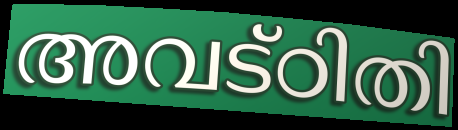
അവട്ഠിതി